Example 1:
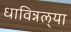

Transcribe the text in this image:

धाविन्नल्या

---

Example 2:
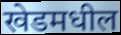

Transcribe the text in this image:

खेडमधील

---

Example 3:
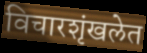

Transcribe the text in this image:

विचारशृंखलेत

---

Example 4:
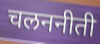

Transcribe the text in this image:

चलननीती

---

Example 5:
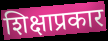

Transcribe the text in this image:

शिक्षाप्रकार